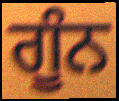
ਗੂੰਨ